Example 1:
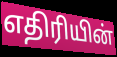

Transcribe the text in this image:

எதிரியின்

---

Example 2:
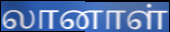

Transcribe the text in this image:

லானாள்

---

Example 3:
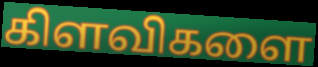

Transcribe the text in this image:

கிளவிகளை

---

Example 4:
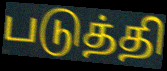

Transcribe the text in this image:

படுத்தி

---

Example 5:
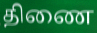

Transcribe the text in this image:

திணை